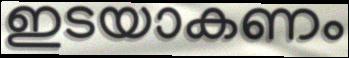
ഇടയാകണം